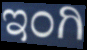
ಇಂಗಿ